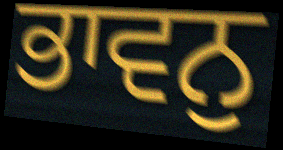
ਭਾਵਨੁ